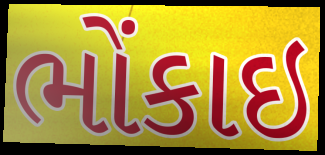
ભોંકાઇ